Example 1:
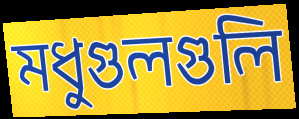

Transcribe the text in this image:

মধুগুলগুলি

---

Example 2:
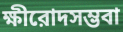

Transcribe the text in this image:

ক্ষীরোদসম্ভবা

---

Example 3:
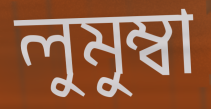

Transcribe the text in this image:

লুমুম্বা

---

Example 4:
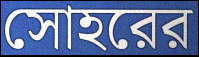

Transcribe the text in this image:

সোহরের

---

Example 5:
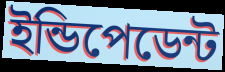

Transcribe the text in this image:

ইন্ডিপেডেন্ট